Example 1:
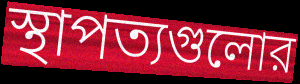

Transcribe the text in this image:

স্থাপত্যগুলোর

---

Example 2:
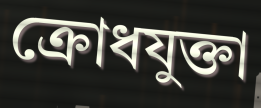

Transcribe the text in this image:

ক্রোধযুক্তা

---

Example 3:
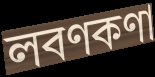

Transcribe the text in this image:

লবণকণা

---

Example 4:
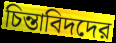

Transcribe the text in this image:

চিন্তাবিদদের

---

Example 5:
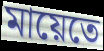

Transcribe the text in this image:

মায়েতে